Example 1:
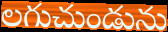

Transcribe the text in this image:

లగుచుండును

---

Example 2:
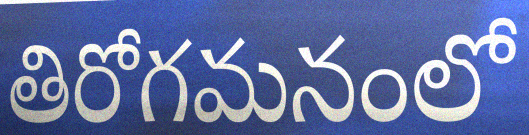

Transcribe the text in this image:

తిరోగమనంలో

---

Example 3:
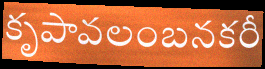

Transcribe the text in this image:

కృపావలంబనకరీ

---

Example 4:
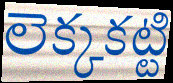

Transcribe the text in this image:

లెక్కకట్టి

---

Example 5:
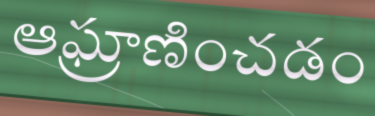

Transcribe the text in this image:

ఆఘ్రాణించడం